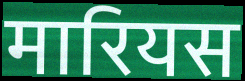
मारियस